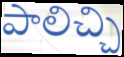
పాలిచ్చి